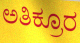
ಅತಿಕ್ರೂರ